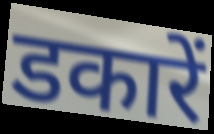
डकारें